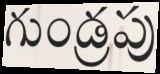
గుండ్రపు